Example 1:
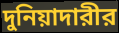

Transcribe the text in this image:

দুনিয়াদারীর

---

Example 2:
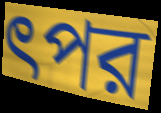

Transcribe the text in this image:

ৎপর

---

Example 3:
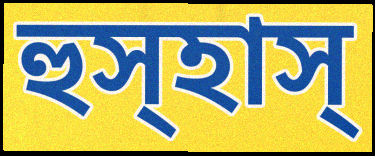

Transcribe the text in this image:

হুস্হাস্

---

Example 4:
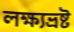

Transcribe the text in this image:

লক্ষ্যভ্রষ্ট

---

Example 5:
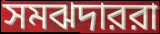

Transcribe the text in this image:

সমঝদাররা